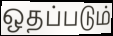
ஒதப்படும்